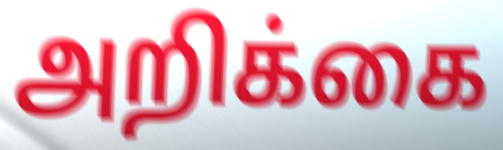
அறிக்கை